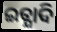
ଇତ୍ଯାଦି